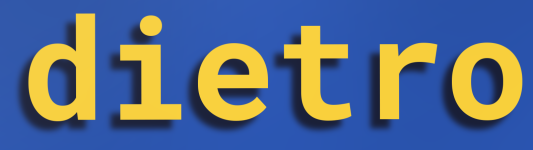
dietro